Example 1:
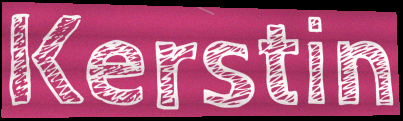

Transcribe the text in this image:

Kerstin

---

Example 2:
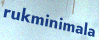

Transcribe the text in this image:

rukminimala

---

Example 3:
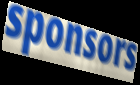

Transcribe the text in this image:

sponsors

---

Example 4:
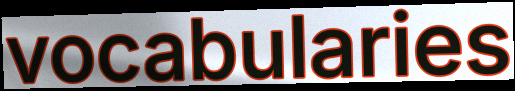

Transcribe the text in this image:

vocabularies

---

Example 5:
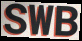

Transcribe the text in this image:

SWB